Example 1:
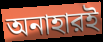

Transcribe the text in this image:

অনাহারই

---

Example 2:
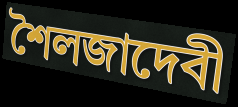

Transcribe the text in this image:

শৈলজাদেবী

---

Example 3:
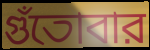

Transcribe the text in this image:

গুঁতোবার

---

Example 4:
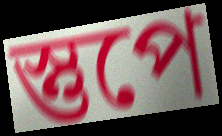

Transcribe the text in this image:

স্তুপে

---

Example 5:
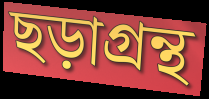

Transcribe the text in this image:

ছড়াগ্রন্থ